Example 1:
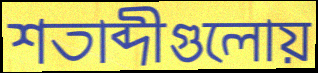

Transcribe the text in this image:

শতাব্দীগুলোয়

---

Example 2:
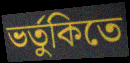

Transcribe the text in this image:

ভর্তুকিতে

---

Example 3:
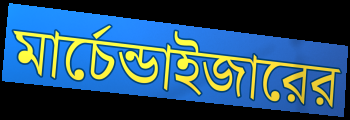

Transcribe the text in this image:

মার্চেন্ডাইজারের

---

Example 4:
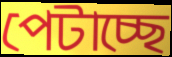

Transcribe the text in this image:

পেটাচ্ছে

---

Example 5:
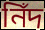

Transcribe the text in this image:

নিঁদ